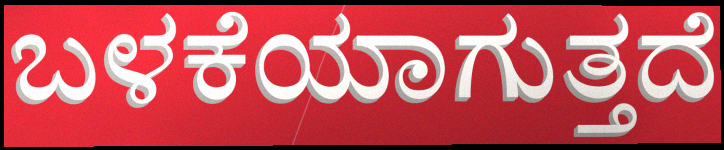
ಬಳಕೆಯಾಗುತ್ತದೆ